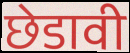
छेडावी